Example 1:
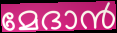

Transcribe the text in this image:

മേദാൻ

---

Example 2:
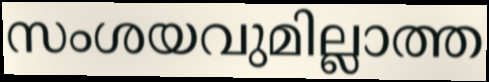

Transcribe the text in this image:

സംശയവുമില്ലാത്ത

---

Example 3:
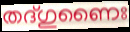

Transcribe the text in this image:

തദ്ഗുണൈഃ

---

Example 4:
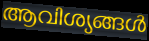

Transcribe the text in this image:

ആവിശ്യങ്ങൾ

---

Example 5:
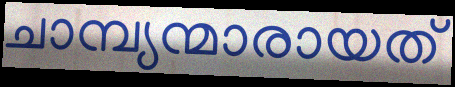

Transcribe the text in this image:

ചാമ്പ്യന്മാരായത്